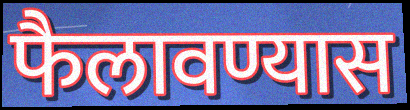
फैलावण्यास